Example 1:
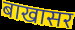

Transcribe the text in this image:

बाखासर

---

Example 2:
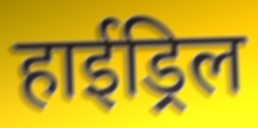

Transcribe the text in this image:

हाईड्रिल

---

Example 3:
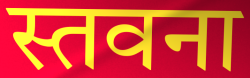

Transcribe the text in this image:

स्तवना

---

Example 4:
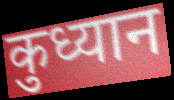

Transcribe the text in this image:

कुध्यान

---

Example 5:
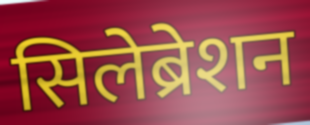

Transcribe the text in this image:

सिलेब्रेशन